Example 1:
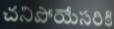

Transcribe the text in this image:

చనిపోయేసరికి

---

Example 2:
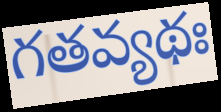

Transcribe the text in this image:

గతవ్యథః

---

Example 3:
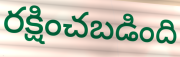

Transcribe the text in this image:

రక్షించబడింది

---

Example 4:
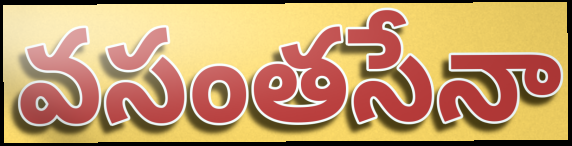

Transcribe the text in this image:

వసంతసేనా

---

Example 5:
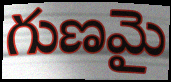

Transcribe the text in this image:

గుణమై